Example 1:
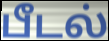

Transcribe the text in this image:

பீடல்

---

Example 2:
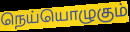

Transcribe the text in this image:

நெய்யொழுகும்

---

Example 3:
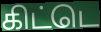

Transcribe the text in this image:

கிட்டெ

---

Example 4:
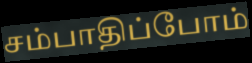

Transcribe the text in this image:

சம்பாதிப்போம்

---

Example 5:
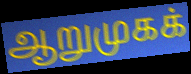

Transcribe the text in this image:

ஆறுமுகக்